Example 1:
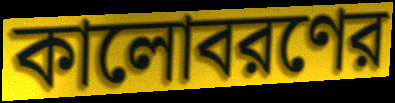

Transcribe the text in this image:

কালোবরণের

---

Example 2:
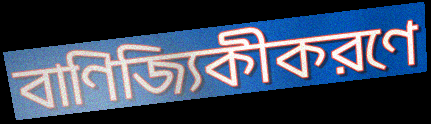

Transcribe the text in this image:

বাণিজ্যিকীকরণে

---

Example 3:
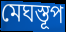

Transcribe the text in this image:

মেঘস্তূপ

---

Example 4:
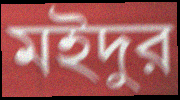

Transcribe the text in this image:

মইদুর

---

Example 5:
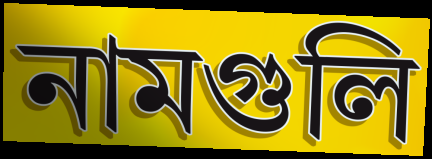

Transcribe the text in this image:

নামগুলি